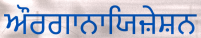
ਔਰਗਾਨਾਯਿਜ਼ੇਸ਼ਨ